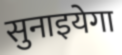
सुनाइयेगा